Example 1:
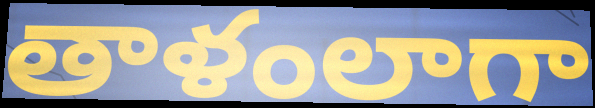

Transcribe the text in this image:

తాళంలాగా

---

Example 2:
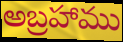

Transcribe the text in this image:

అబ్రహాము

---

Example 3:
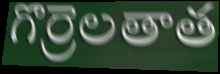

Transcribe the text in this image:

గొర్రెలతాత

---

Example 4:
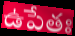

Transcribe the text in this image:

ఉపేతః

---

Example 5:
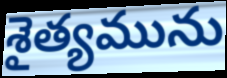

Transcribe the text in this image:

శైత్యమును